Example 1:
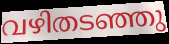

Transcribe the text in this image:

വഴിതടഞ്ഞു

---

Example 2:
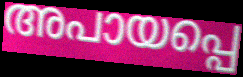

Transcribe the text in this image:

അപായപ്പെ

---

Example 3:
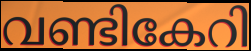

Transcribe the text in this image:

വണ്ടികേറി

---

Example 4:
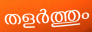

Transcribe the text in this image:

തളർത്തും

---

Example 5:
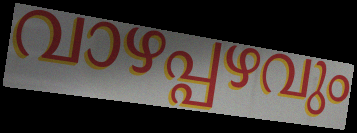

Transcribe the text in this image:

വാഴപ്പഴവും